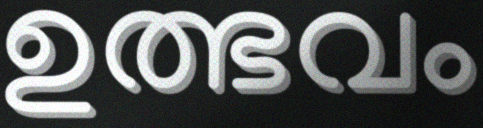
ഉത്ഭവം